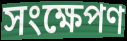
সংক্ষেপণ